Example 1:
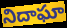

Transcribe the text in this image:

నిదాఘా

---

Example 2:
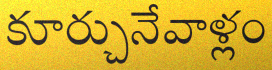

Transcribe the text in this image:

కూర్చునేవాళ్లం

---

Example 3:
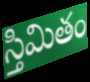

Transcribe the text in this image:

స్తిమితం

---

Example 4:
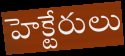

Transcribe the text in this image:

హెక్టేరులు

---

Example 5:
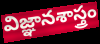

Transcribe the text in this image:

విజ్ఞానశాస్త్రం